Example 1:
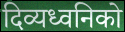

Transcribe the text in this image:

दिव्यध्वनिको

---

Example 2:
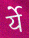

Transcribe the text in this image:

र्ये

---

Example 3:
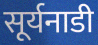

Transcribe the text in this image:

सूर्यनाडी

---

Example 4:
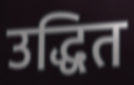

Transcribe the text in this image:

उद्धित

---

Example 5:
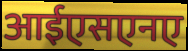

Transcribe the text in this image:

आईएसएनए